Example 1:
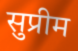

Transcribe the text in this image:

सुप्रीम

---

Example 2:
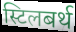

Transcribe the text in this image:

स्टिलबर्थ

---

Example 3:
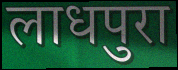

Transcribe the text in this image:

लाधपुरा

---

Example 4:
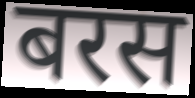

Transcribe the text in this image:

बरस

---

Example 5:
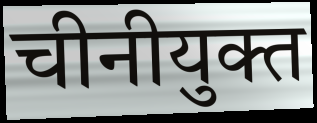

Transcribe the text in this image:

चीनीयुक्त